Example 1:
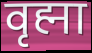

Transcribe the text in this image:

वृह्मा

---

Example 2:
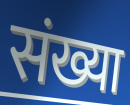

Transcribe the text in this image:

संख्या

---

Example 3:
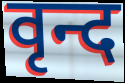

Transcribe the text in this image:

वृन्द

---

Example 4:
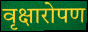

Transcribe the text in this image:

वृक्षारोपण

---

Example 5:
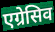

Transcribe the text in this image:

एग्रेसिव